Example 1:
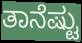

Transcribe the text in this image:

ತಾನೆಷ್ಟು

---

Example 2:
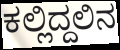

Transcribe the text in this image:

ಕಲ್ಲಿದ್ದಲಿನ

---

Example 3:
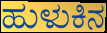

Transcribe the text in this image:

ಹುಳುಕಿನ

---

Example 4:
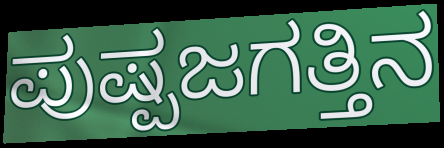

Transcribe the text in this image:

ಪುಷ್ಪಜಗತ್ತಿನ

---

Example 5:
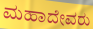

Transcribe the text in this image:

ಮಹಾದೇವರು